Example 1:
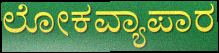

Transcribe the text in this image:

ಲೋಕವ್ಯಾಪಾರ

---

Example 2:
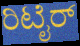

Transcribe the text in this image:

ರಿಟೈರ್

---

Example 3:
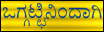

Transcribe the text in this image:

ಒಗ್ಗಟ್ಟಿನಿಂದಾಗಿ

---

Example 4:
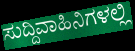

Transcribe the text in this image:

ಸುದ್ದಿವಾಹಿನಿಗಳಲ್ಲಿ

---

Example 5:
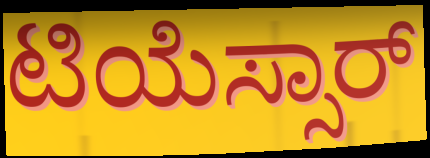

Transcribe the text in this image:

ಟಿಯೆಸ್ಸಾರ್